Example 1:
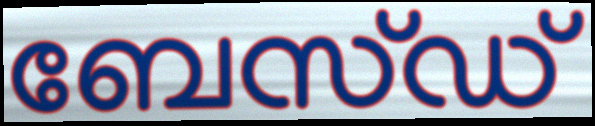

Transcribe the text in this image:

ബേസ്ഡ്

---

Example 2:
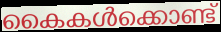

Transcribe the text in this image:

കൈകൾക്കൊണ്ട്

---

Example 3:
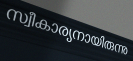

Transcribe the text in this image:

സ്വീകാര്യനായിരുന്നു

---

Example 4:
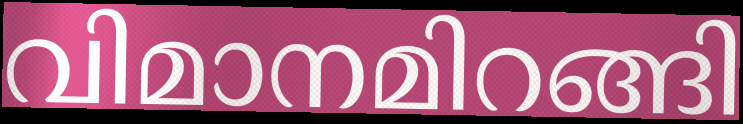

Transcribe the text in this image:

വിമാനമിറങ്ങി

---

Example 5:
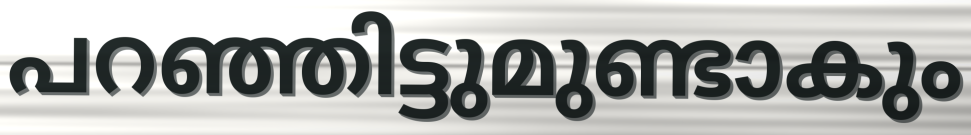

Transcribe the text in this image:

പറഞ്ഞിട്ടുമുണ്ടാകും